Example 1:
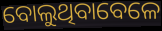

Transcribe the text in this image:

ବୋଲୁଥିବାବେଳେ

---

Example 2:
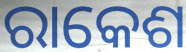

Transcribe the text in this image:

ରାକେଶ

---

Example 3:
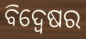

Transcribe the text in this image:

ବିଦ୍ବେଷର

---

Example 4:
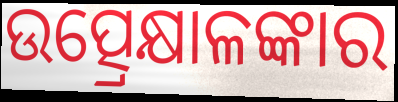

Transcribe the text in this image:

ଉତ୍ପ୍ରେକ୍ଷାଳଙ୍କାର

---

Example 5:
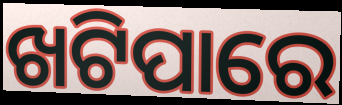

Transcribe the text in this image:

ଖଟିପାରେ